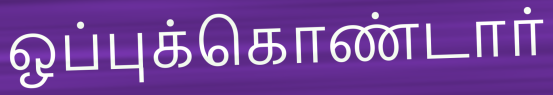
ஒப்புக்கொண்டார்